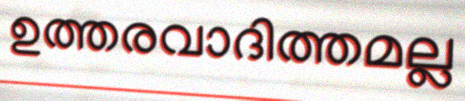
ഉത്തരവാദിത്തമല്ല